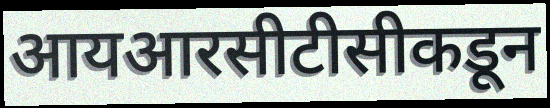
आयआरसीटीसीकडून